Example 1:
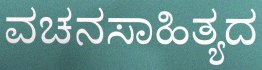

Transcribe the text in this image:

ವಚನಸಾಹಿತ್ಯದ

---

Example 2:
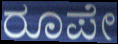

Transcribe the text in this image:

ರೂಪೇ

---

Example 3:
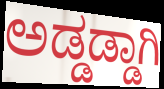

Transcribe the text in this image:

ಅಡ್ಡಡ್ಡಾಗಿ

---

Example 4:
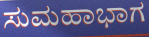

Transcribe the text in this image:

ಸುಮಹಾಭಾಗ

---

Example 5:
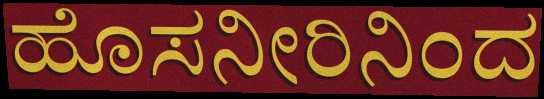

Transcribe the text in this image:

ಹೊಸನೀರಿನಿಂದ